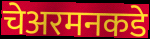
चेअरमनकडे